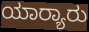
ಯಾರ‍್ಯಾರು